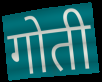
गोती